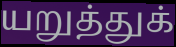
யறுத்துக்